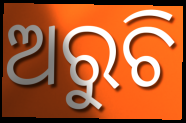
ଅରୁଚି